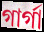
গার্গা